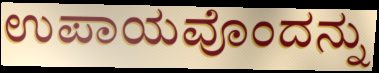
ಉಪಾಯವೊಂದನ್ನು